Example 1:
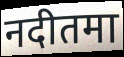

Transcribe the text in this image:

नदीतमा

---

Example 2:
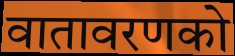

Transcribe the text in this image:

वातावरणको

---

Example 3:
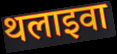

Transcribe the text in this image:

थलाइवा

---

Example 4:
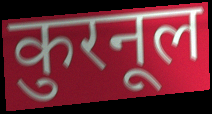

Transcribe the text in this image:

कुरनूल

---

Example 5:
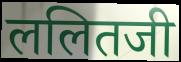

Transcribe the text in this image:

ललितजी